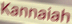
Kannaiah